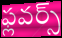
ఫ్లవర్స్